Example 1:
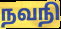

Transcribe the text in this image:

நவநி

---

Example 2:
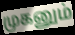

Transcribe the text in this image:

முகனும்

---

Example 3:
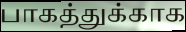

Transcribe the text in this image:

பாகத்துக்காக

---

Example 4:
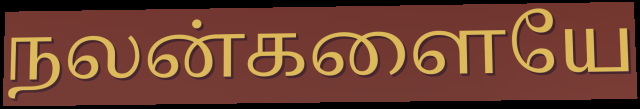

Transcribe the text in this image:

நலன்களையே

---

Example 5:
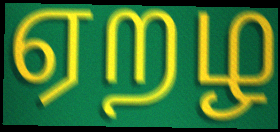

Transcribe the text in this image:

ஏறழ